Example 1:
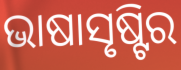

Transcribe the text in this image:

ଭାଷାସୃଷ୍ଟିର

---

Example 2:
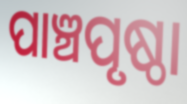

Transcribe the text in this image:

ପାଞ୍ଚପୃଷ୍ଠା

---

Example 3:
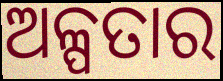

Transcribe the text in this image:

ଅଳ୍ପତାର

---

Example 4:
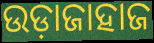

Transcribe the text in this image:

ଉଡ଼ାଜାହାଜ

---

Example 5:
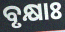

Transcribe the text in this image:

ବୃକ୍ଷାଃ